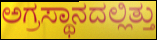
ಅಗ್ರಸ್ಥಾನದಲ್ಲಿತ್ತು